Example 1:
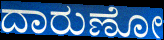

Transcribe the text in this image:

ದಾರುಣೋ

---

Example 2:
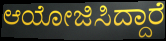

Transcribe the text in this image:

ಆಯೋಜಿಸಿದ್ದಾರೆ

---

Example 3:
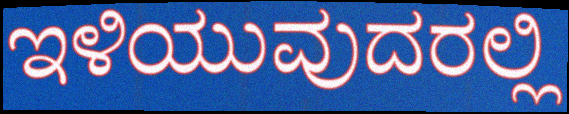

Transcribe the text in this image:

ಇಳಿಯುವುದರಲ್ಲಿ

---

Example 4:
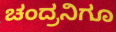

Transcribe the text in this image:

ಚಂದ್ರನಿಗೂ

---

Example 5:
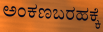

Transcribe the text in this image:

ಅಂಕಣಬರಹಕ್ಕೆ